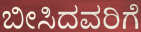
ಬೀಸಿದವರಿಗೆ